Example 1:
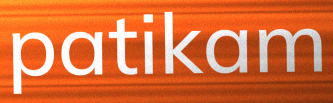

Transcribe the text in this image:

patikam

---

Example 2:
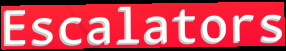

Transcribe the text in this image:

Escalators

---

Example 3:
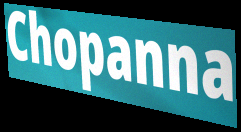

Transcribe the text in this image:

Chopanna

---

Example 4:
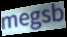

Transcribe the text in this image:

megsb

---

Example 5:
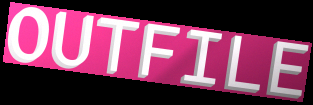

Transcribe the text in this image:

OUTFILE